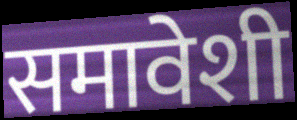
समावेशी